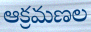
ఆక్రమణల